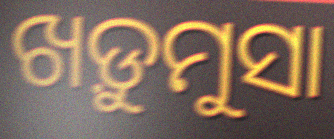
ଖଡ଼ୁମୁସା